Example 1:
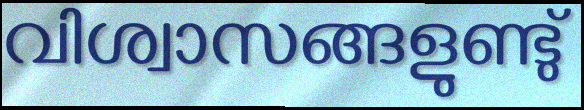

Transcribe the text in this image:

വിശ്വാസങ്ങളുണ്ടു്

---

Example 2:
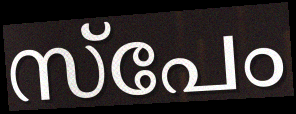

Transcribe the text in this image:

സ്പേം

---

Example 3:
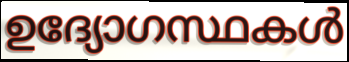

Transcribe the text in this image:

ഉദ്യോഗസ്ഥകൾ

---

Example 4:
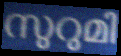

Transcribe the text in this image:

സുറുമി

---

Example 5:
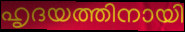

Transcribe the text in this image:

ഹൃദയത്തിനായി